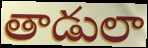
తాడులా